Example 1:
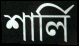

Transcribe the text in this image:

শার্লি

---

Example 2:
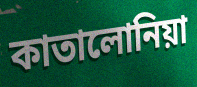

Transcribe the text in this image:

কাতালোনিয়া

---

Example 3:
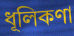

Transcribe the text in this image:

ধূলিকণা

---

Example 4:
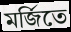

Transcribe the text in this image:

মর্জিতে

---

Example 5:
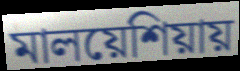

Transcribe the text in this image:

মালয়েশিয়ায়